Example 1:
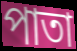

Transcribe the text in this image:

পাতা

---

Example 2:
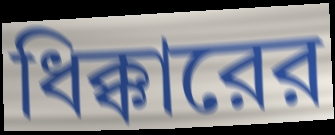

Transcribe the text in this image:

ধিক্কারের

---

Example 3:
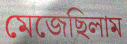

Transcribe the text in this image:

মেজেছিলাম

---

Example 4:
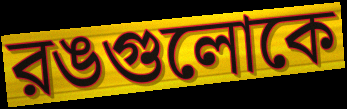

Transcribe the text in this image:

রঙগুলোকে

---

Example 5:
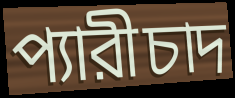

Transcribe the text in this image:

প্যারীচাদ